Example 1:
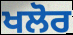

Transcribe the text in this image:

ਖਲੋਰ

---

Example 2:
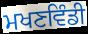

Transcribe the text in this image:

ਮਖਣਵਿੰਡੀ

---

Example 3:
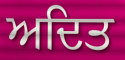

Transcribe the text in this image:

ਅਦਿਤ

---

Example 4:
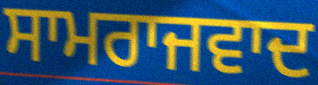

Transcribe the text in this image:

ਸਾਮਰਾਜਵਾਦ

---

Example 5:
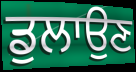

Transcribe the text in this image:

ਡੁਲਾਉਣ